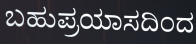
ಬಹುಪ್ರಯಾಸದಿಂದ